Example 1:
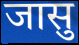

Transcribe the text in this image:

जासु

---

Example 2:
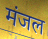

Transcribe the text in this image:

मंजल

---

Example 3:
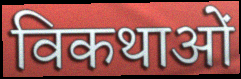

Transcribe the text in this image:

विकथाओं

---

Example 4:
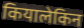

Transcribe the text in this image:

कियालेकिन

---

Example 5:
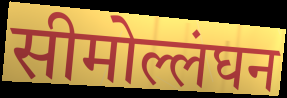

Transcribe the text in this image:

सीमोल्लंघन